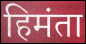
हिमंता